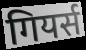
गियर्स